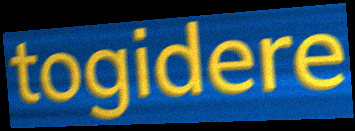
togidere